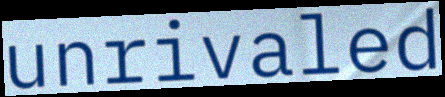
unrivaled